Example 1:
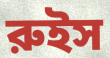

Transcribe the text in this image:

রুইস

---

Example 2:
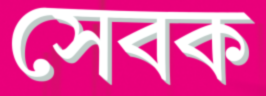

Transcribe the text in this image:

সেবক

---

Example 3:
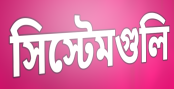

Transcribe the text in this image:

সিস্টেমগুলি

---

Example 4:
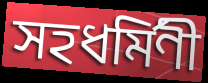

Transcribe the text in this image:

সহধর্মিণী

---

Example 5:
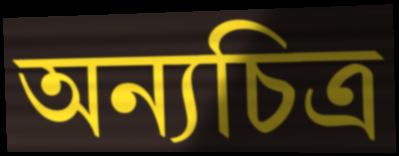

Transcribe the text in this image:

অন্যচিত্র